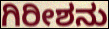
ಗಿರೀಶನು